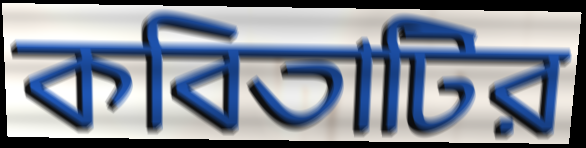
কবিতাটির